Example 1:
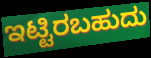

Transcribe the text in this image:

ಇಟ್ಟಿರಬಹುದು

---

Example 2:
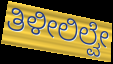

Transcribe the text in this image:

ತಿಳೀಲಿಲ್ವೇ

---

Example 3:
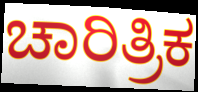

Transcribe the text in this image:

ಚಾರಿತ್ರಿಕ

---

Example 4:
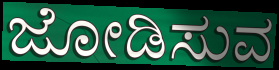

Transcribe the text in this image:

ಜೋಡಿಸುವ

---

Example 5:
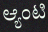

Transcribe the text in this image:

ಆ್ಯಂಟಿ